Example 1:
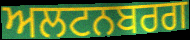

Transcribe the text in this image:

ਅਲਟਨਬਰਗ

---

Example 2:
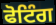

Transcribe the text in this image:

ਫੋਟਿੰਗ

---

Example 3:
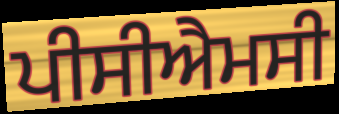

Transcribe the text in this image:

ਪੀਸੀਐਮਸੀ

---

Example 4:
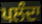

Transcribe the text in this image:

ਪਲੰਦਾ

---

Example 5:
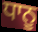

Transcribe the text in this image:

ਧਾਨੂ